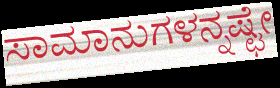
ಸಾಮಾನುಗಳನ್ನಷ್ಟೇ